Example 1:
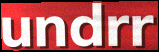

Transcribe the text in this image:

undrr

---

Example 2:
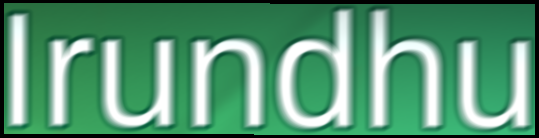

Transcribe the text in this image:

Irundhu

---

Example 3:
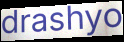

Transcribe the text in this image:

drashyo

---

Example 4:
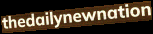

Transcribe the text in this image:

thedailynewnation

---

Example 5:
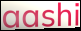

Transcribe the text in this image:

aashi